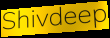
Shivdeep